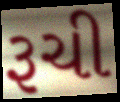
રૂચી